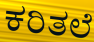
ಕರಿತಲೆ